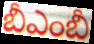
బీఎంబీ